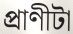
প্রাণীটা